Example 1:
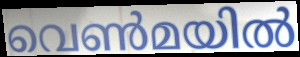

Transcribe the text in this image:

വെൺമയിൽ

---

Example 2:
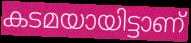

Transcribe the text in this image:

കടമയായിട്ടാണ്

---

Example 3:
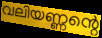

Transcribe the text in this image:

വലിയണ്ണന്റെ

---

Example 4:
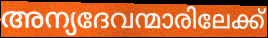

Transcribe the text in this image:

അന്യദേവന്മാരിലേക്ക്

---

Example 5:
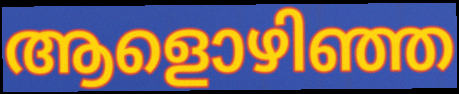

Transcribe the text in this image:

ആളൊഴിഞ്ഞ